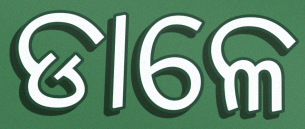
ଡାଳେ